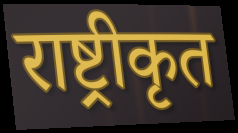
राष्ट्रीकृत